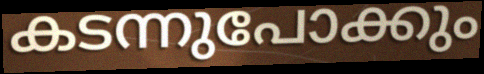
കടന്നുപോക്കും